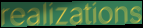
realizations